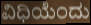
ವಿಧಿಯೆಂದು